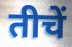
तीचें